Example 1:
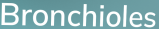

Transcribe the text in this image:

Bronchioles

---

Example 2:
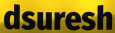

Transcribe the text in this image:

dsuresh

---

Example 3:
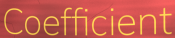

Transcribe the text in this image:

Coefficient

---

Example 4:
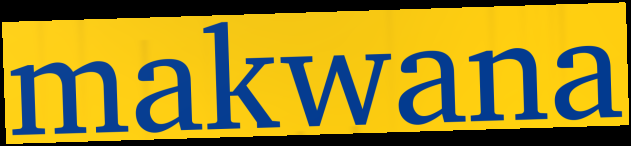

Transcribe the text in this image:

makwana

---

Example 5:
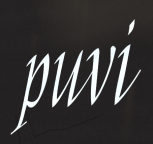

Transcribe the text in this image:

puvi